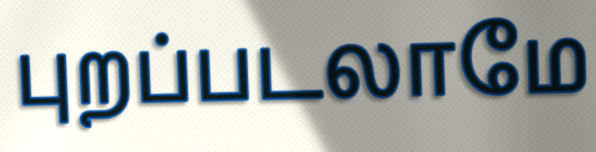
புறப்படலாமே